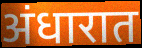
अंधारात